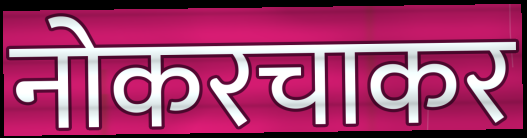
नोकरचाकर